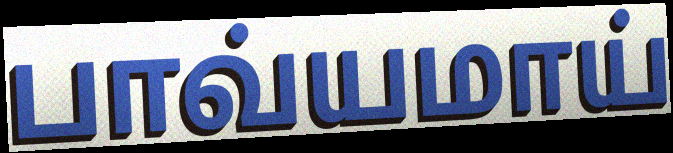
பாவ்யமாய்